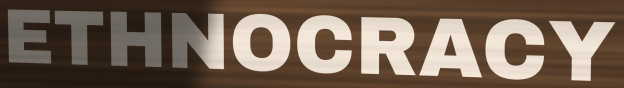
ETHNOCRACY